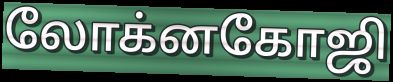
லோக்னகோஜி